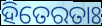
ହିତେରତାଃ